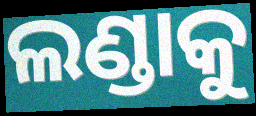
ଲଣ୍ଡାକୁ